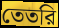
তেতরি